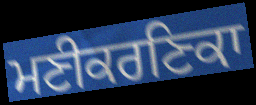
ਮਣੀਕਰਣਿਕਾ